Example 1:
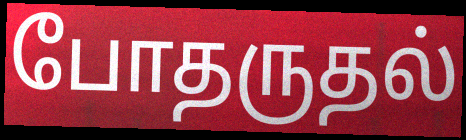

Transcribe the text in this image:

போதருதல்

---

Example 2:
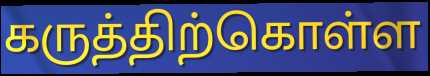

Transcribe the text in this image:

கருத்திற்கொள்ள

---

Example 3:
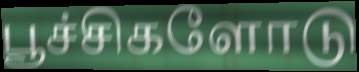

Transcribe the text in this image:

பூச்சிகளோடு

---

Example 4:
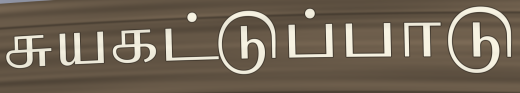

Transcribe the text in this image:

சுயகட்டுப்பாடு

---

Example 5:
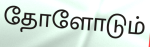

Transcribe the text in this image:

தோளோடும்